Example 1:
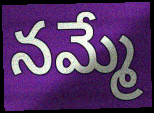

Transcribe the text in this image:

నమ్మే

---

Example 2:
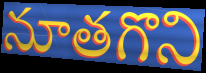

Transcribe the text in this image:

నూతగొని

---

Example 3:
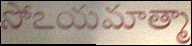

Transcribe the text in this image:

సోఽయమాత్మా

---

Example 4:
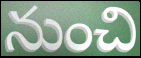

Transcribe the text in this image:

నుంచి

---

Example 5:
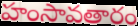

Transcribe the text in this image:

హంసావతారం